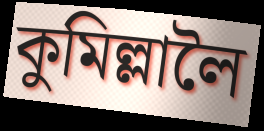
কুমিল্লালৈ